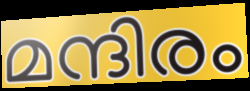
മന്ദിരം